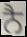
ਨੈ